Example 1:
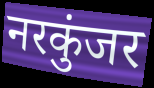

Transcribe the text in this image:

नरकुंजर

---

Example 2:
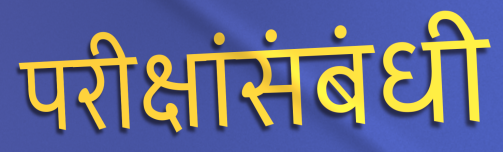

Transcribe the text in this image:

परीक्षांसंबंधी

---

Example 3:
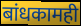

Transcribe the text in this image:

बांधकामही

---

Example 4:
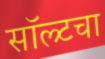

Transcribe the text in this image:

सॉल्टचा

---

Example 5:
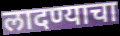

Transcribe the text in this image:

लादण्याचा